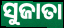
ସୁଜାତା